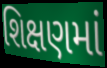
શિક્ષણમાં